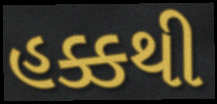
હક્કથી